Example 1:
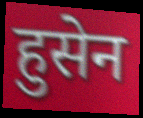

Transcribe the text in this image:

हुसेन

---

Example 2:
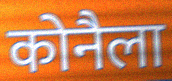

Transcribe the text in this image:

कोनैला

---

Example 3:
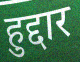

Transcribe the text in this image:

हुद्दार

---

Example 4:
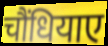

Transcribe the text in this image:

चौंधियाए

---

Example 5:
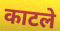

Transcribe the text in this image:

काटले